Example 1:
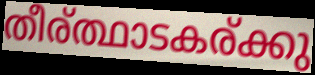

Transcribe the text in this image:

തീര്ത്ഥാടകര്ക്കു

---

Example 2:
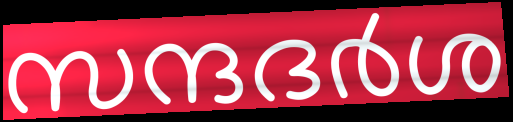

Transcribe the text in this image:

സന്ദദർശ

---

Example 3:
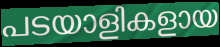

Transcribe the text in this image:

പടയാളികളായ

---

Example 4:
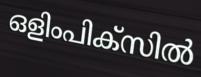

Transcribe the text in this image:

ഒളിംപിക്സിൽ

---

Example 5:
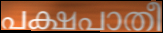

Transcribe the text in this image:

പക്ഷപാതീ